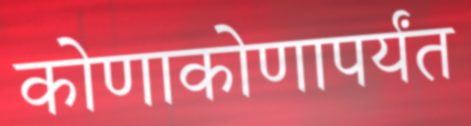
कोणाकोणापर्यंत